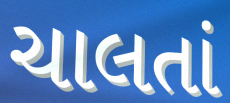
ચાલતાં